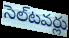
సెల్‌టవర్లు